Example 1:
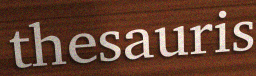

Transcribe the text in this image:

thesauris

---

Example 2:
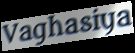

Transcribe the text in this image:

Vaghasiya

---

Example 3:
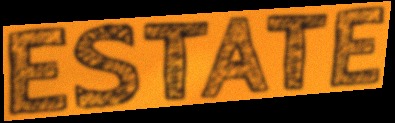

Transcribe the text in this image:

ESTATE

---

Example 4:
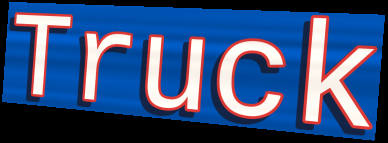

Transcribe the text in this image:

Truck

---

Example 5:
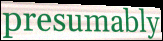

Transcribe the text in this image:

presumably